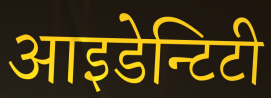
आइडेन्टिटी